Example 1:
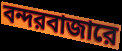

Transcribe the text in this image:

বন্দরবাজারে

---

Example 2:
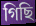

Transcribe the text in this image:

গিছি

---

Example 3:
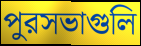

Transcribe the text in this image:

পুরসভাগুলি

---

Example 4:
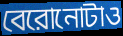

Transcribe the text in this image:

বেরোনোটাও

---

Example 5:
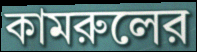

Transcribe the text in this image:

কামরুলের